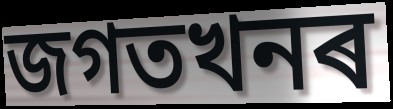
জগতখনৰ